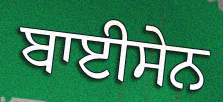
ਬਾਈਸੇਨ